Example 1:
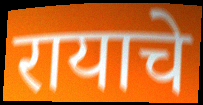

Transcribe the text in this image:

रायाचे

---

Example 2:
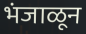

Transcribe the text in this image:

भंजाळून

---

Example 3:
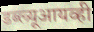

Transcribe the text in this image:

डब्ल्यूआयव्ही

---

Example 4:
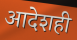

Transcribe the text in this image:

आदेशही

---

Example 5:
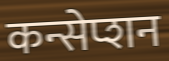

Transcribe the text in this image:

कन्सेप्शन